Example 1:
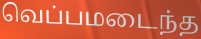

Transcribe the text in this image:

வெப்பமடைந்த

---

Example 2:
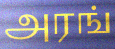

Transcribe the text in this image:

அரங்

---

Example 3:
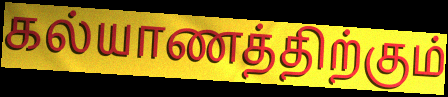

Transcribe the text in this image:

கல்யாணத்திற்கும்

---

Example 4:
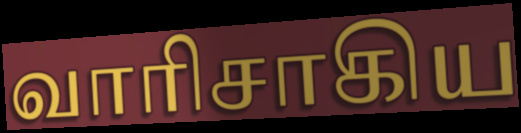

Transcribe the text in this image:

வாரிசாகிய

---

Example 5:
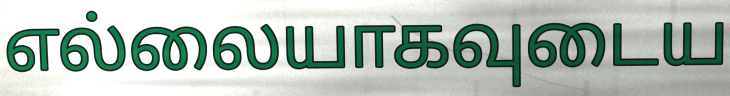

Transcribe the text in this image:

எல்லையாகவுடைய